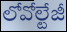
లోవోల్టేజీ